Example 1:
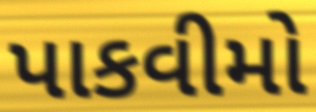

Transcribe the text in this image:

પાકવીમો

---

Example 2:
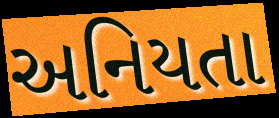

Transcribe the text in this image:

અનિયતા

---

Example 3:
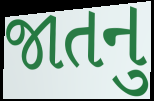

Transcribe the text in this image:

જાતનુ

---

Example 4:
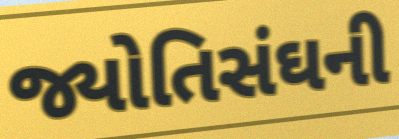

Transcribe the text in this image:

જ્યોતિસંઘની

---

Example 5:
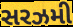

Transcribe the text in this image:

સરઝમી